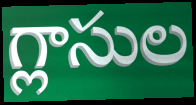
గ్లాసుల